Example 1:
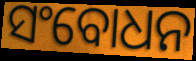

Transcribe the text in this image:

ସଂବୋଧନ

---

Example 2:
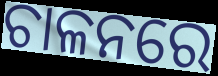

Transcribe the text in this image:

ଚାଳନରେ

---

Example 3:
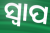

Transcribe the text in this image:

ସ୍ବାପ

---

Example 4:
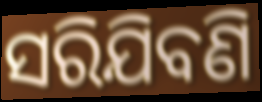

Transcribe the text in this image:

ସରିଯିବଣି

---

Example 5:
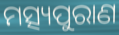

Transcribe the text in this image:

ମତ୍ସ୍ୟପୁରାଣ